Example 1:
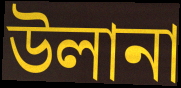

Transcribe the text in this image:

উলানা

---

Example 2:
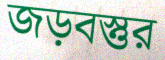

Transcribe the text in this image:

জড়বস্তুর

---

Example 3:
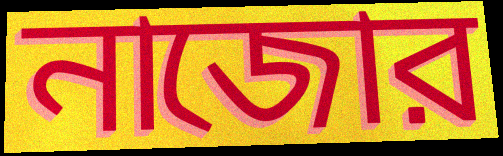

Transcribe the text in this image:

নাজোর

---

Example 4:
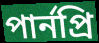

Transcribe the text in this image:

পার্নপ্রি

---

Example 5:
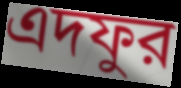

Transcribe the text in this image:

এদফুর